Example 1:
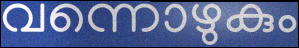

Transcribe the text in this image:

വന്നൊഴുകും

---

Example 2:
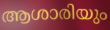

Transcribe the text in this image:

ആശാരിയും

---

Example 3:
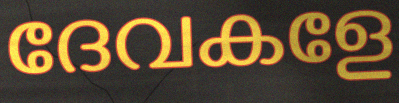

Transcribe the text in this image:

ദേവകളേ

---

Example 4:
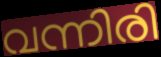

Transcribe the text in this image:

വന്നിരി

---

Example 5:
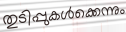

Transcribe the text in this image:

തുടിപ്പുകൾക്കെന്നും